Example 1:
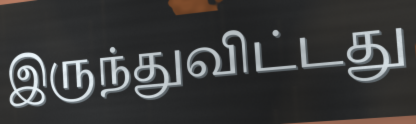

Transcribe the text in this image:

இருந்துவிட்டது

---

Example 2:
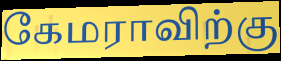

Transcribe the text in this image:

கேமராவிற்கு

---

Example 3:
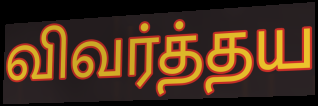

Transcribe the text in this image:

விவர்த்தய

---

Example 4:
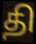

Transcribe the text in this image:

தி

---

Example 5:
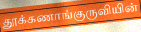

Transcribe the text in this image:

தூக்கணாங்குருவியின்